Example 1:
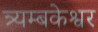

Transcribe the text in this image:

त्र्यम्बकेश्वर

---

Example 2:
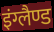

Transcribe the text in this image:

इंग्लैण्ड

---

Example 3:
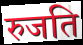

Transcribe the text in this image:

रुजति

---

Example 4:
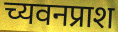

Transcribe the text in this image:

च्‍यवनप्राश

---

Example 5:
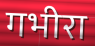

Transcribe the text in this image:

गभीरा